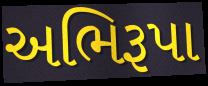
અભિરૂપા